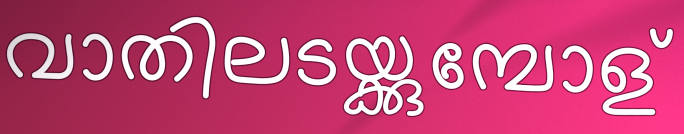
വാതിലടയ്ക്കുമ്പോള്